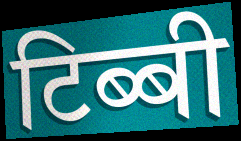
टिब्बी